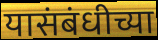
यासंबंधीच्या